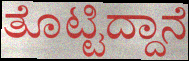
ತೊಟ್ಟಿದ್ದಾನೆ